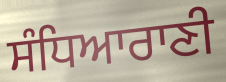
ਸੰਧਿਆਰਾਣੀ